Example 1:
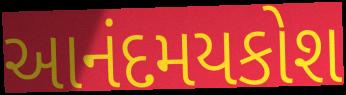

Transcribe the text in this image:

આનંદમયકોશ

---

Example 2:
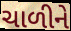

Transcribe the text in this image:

ચાળીને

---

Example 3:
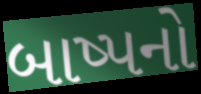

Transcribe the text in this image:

બાષ્પનો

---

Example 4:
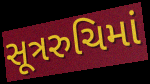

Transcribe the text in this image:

સૂત્રરુચિમાં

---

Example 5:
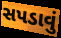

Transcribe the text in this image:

સપડાવું